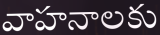
వాహనాలకు